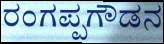
ರಂಗಪ್ಪಗೌಡನ